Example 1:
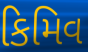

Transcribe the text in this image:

કિમિવ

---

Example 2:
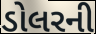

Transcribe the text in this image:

ડોલરની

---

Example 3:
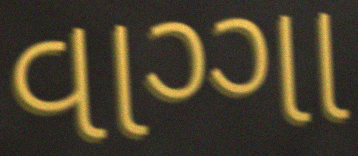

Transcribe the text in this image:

વાગ્ગા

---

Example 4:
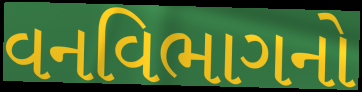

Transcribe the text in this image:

વનવિભાગનો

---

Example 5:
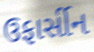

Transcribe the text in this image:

ઉફાર્સીન